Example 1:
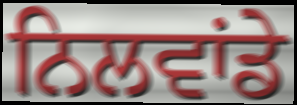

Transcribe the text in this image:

ਨਿਲਵਾਂਡੇ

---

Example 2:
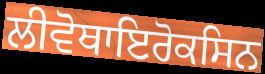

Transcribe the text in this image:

ਲੀਵੋਥਾਇਰੋਕਸਿਨ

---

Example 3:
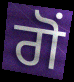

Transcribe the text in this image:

ਗੋਂ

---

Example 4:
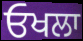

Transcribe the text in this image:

ਓਖਲਾ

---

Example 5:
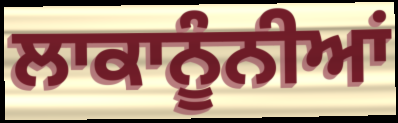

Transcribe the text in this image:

ਲਾਕਾਨੂੰਨੀਆਂ